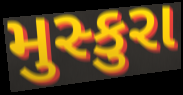
મુસ્કુરા